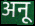
अनू